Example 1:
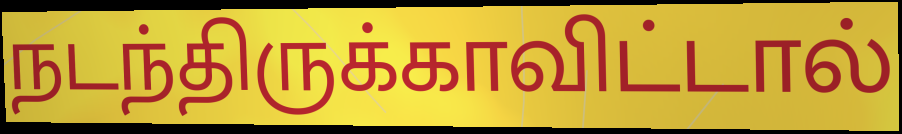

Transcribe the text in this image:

நடந்திருக்காவிட்டால்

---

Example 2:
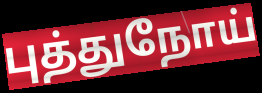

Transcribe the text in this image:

புத்துநோய்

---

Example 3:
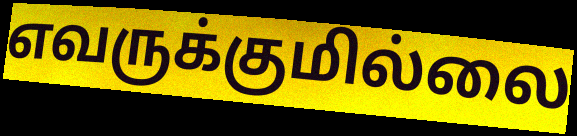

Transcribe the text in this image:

எவருக்குமில்லை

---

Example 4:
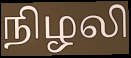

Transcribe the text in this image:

நிழலி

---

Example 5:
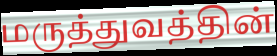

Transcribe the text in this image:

மருத்துவத்தின்